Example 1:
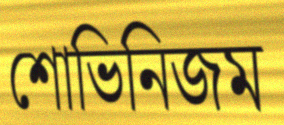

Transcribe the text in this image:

শোভিনিজম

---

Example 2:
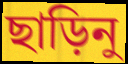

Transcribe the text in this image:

ছাড়িনু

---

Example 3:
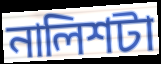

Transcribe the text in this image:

নালিশটা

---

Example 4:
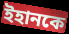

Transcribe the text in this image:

ইহানকে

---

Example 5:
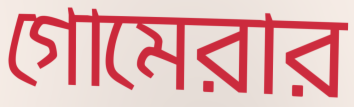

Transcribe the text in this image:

গোমেরার